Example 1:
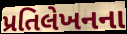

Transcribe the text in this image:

પ્રતિલેખનના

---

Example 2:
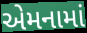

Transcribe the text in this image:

એમનામાં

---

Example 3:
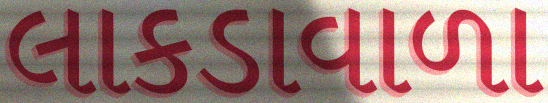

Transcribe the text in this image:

લાકડાવાળા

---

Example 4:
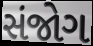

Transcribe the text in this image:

સંજોગ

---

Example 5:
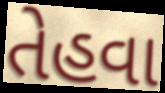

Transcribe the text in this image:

તેહવા